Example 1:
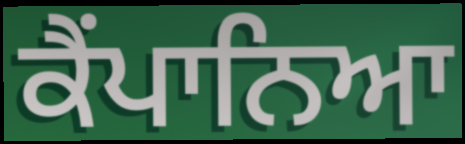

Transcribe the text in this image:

ਕੈਂਪਾਨਿਆ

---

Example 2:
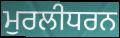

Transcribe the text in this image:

ਮੁਰਲੀਧਰਨ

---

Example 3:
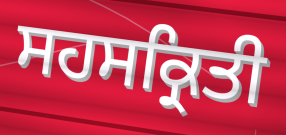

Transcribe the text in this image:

ਸਹਸਕ੍ਰਿਤੀ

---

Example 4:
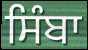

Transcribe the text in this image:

ਸਿੰਬਾ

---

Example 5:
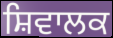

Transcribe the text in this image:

ਸ਼ਿਵਾਲਕ